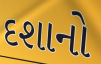
દશાનો